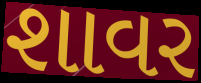
શાવર